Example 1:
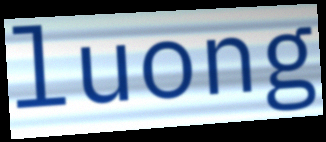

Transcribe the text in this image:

luong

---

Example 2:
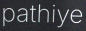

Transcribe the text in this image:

pathiye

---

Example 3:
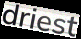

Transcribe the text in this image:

driest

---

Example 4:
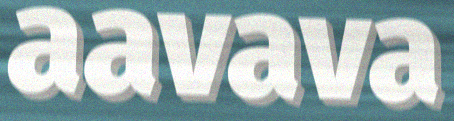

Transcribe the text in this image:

aavava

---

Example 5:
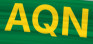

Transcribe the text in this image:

AQN